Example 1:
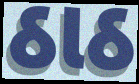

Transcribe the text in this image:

ઠાઠ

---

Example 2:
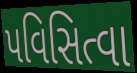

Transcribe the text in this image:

પવિસિત્વા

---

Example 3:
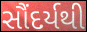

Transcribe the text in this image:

સૌંદર્યથી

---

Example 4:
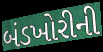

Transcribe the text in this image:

બંડખોરીની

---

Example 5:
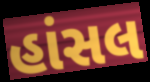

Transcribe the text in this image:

હાંસલ